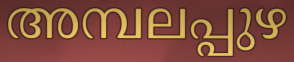
അമ്പലപ്പുഴ